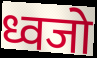
ध्वजो